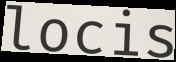
locis